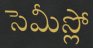
సెమీస్లో